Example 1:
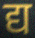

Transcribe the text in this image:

द्य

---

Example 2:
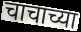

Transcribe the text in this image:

चाचाच्या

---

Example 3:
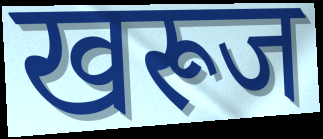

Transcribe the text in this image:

खरूज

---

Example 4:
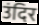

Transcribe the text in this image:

उंदिर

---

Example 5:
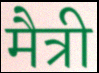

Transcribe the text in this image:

मैत्री